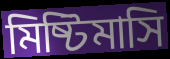
মিষ্টিমাসি